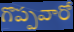
గొప్పవారో